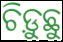
ଚିଡ଼ୁଛୁ